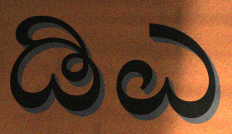
ಡಿಎ